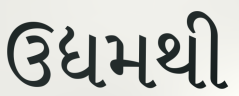
ઉદ્યમથી